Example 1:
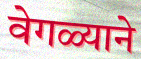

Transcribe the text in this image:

वेगळ्याने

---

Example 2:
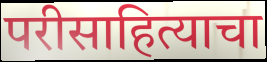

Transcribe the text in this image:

परीसाहित्याचा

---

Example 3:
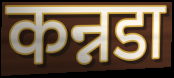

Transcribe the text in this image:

कन्नडा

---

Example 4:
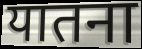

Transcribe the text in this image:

यातना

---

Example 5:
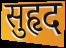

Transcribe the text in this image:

सुहृद